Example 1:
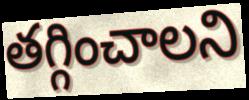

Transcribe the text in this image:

తగ్గించాలని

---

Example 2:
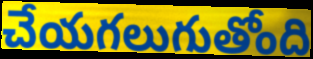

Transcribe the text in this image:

చేయగలుగుతోంది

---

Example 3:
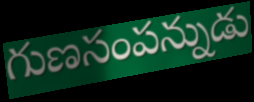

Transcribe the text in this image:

గుణసంపన్నుడు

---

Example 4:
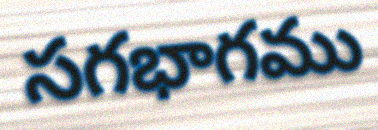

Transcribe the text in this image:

సగభాగము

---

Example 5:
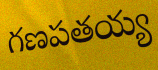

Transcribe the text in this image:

గణపతయ్య